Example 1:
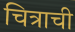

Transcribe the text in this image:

चित्राची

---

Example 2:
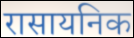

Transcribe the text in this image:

रासायनिक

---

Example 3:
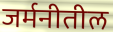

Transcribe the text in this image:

जर्मनीतील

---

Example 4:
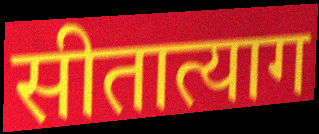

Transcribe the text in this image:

सीतात्याग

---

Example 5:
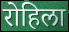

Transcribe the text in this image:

रोहिला